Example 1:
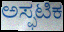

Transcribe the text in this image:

ಅಸ್ಫಟಿಕ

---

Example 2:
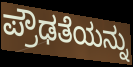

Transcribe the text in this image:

ಪ್ರೌಢತೆಯನ್ನು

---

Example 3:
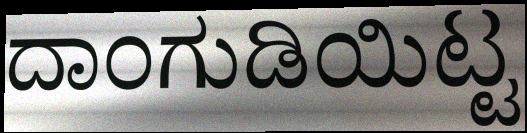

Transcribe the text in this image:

ದಾಂಗುಡಿಯಿಟ್ಟ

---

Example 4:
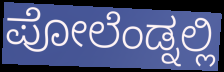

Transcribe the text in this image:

ಪೋಲೆಂಡ್ನಲ್ಲಿ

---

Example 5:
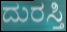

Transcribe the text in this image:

ದುರಸ್ತಿ